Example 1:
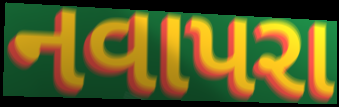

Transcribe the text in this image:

નવાપરા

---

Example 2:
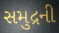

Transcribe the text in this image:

સમુદ્રની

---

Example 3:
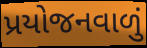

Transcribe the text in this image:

પ્રયોજનવાળું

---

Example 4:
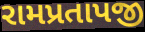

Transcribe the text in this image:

રામપ્રતાપજી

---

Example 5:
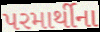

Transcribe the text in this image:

પરમાર્થીના